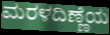
ಮರಳದಿಣ್ಣೆಯ